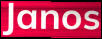
Janos